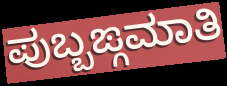
ಪುಬ್ಬಙ್ಗಮಾತಿ